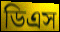
ডিএস